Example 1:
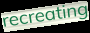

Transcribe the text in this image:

recreating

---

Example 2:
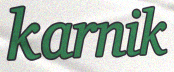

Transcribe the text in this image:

karnik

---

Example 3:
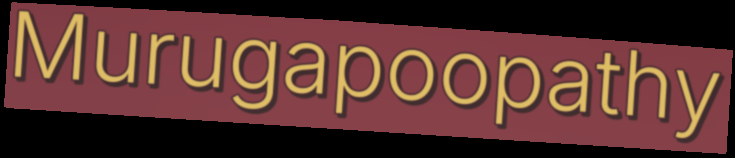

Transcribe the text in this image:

Murugapoopathy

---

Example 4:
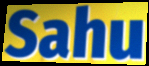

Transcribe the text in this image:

Sahu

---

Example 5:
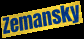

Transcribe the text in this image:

Zemansky